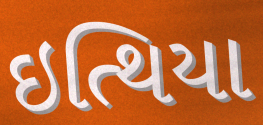
ઇત્થિયા